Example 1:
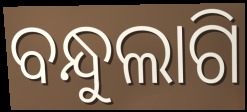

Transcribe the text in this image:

ବନ୍ଧୁଲାଗି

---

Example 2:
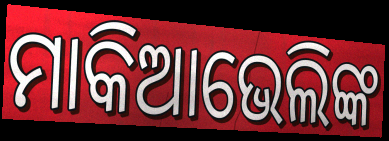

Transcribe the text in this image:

ମାକିଆଭେଲିଙ୍କ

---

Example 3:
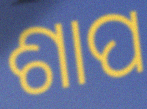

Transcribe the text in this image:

ଶାପ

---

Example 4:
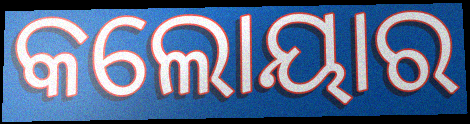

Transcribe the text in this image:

କଲୋୟାର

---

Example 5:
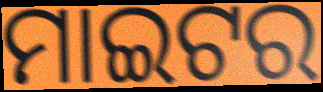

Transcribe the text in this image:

ମାଇଟର